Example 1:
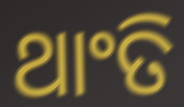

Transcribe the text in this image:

ଥାଂତି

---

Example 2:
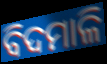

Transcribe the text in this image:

ବିଦମାଳି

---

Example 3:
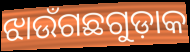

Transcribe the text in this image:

ଝାଉଁଗଛଗୁଡ଼ାକ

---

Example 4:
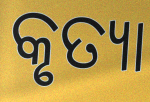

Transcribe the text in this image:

କୃତ୍ୟା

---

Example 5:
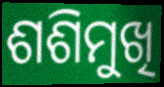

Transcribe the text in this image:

ଶଶିମୁଖି